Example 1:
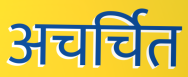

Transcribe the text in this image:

अचर्चित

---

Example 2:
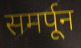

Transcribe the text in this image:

समर्पून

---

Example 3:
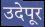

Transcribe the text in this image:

उदेपूर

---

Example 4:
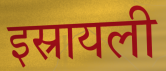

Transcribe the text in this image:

इस्रायली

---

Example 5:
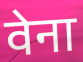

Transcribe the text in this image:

वेना